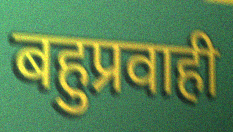
बहुप्रवाही